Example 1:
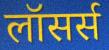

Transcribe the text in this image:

लॉसर्स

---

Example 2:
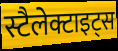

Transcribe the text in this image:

स्टैलेक्टाइट्स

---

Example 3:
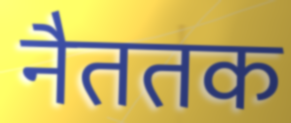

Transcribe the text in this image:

नैततक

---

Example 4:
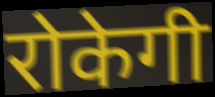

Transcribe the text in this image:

रोकेगी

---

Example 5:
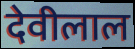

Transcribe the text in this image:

देवीलाल